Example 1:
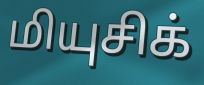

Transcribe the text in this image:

மியுசிக்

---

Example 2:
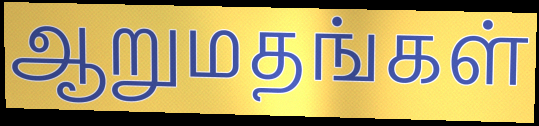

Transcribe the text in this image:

ஆறுமதங்கள்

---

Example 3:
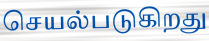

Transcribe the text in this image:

செயல்படுகிறது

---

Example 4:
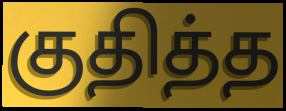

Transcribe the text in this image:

குதித்த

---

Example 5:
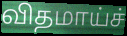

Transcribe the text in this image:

விதமாய்ச்